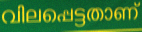
വിലപ്പെട്ടതാണ്